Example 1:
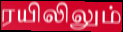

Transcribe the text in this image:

ரயிலிலும்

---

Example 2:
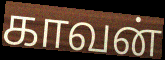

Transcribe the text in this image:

காவன்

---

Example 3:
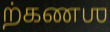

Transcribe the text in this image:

ற்கணஶ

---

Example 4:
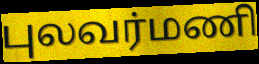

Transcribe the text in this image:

புலவர்மணி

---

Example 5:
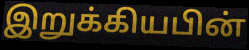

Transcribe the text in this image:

இறுக்கியபின்